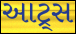
આટ્ર્સ